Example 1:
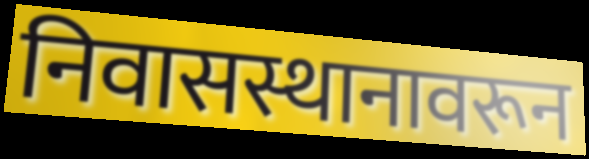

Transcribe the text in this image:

निवासस्थानावरून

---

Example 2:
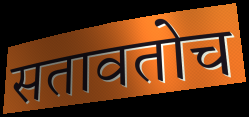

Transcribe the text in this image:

सतावतोच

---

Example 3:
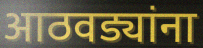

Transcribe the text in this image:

आठवड्यांना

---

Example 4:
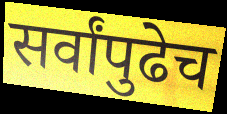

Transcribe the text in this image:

सर्वांपुढेच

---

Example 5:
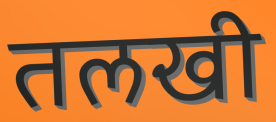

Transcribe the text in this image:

तलखी